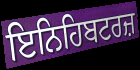
ਇਨਿਹਿਬਟਰਜ਼